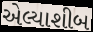
એલ્યાશીબ